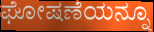
ಘೋಷಣೆಯನ್ನೂ